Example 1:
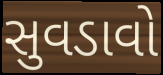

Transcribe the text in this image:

સુવડાવો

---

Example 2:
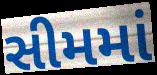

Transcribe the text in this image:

સીમમાં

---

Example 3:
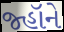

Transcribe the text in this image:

જ્હૉને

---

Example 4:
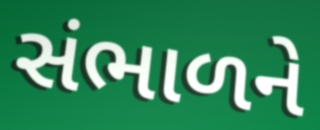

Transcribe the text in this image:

સંભાળને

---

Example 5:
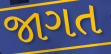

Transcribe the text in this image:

જાગત